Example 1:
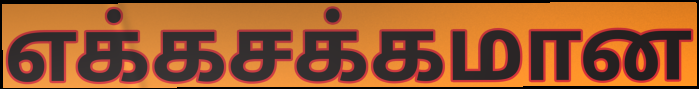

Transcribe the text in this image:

எக்கசக்கமான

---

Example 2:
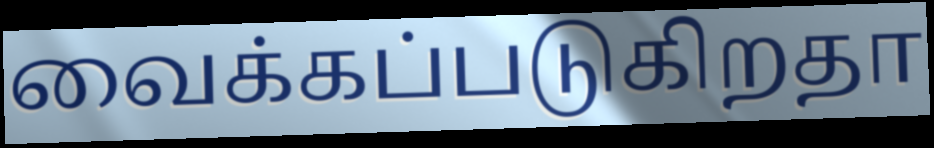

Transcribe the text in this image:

வைக்கப்படுகிறதா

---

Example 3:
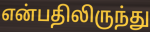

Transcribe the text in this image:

என்பதிலிருந்து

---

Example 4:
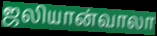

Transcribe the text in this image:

ஜலியான்வாலா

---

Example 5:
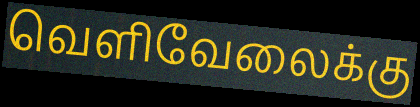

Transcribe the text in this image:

வெளிவேலைக்கு